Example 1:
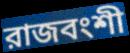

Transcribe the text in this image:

রাজবংশী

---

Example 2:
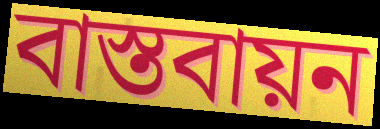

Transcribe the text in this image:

বাস্তবায়ন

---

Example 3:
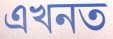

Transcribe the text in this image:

এখনত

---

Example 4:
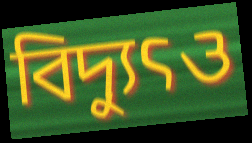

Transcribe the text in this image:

বিদ্যুৎও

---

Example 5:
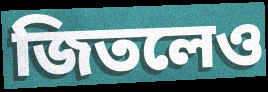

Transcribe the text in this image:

জিতলেও